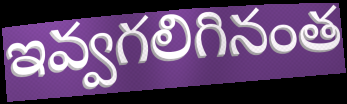
ఇవ్వగలిగినంత